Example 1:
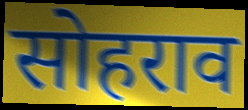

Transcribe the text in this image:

सोहराव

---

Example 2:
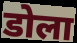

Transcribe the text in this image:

डोला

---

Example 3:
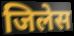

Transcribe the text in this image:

जिलेस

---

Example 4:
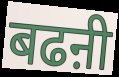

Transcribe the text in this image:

बढऩी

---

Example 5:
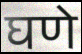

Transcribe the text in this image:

घणे